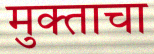
मुक्ताचा